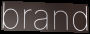
brand